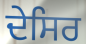
ਦੇਸਿਰ